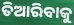
ତିଆରିବାକୁ